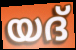
യദ്